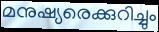
മനുഷ്യരെക്കുറിച്ചും